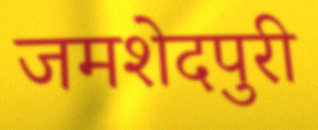
जमशेदपुरी